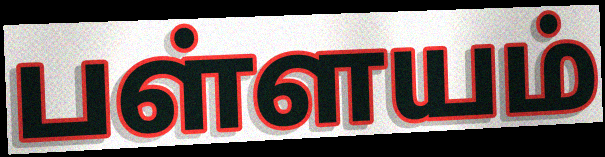
பள்ளயம்